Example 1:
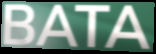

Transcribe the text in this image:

BATA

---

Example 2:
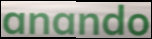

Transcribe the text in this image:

anando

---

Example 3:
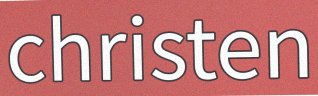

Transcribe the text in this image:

christen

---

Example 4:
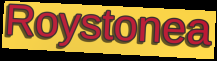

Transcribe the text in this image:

Roystonea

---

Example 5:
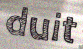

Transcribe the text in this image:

duit